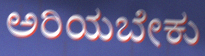
ಅರಿಯಬೇಕು